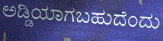
ಅಡ್ಡಿಯಾಗಬಹುದೆಂದು